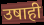
उषाही